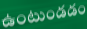
ఉంటుండడం